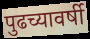
पुढच्यावर्षी